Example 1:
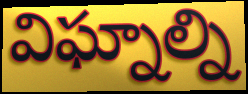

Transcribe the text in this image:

విఘ్నాల్ని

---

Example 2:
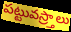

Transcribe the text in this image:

పట్టువస్ర్తాలు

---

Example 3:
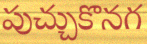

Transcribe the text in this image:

పుచ్చుకొనగ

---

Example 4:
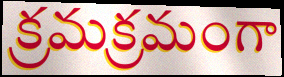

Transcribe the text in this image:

క్రమక్రమంగా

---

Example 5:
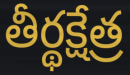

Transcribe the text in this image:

తీర్థక్షేత్ర